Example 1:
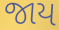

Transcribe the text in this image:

જાય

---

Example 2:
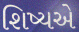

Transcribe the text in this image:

શિષ્યએ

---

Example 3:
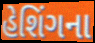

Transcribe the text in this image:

હેશિંગના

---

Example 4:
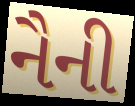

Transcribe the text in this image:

નૈની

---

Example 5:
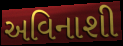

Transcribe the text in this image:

અવિનાશી